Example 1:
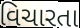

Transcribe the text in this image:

વિચારતા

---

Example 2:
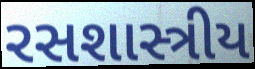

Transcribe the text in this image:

રસશાસ્ત્રીય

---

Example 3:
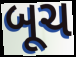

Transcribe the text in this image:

બૂચ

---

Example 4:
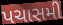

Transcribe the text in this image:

પચાસમી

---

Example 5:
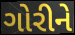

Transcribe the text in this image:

ગોરીને